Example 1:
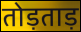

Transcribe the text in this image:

तोड़ताड़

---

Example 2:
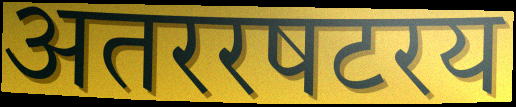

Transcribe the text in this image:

अतररषटरय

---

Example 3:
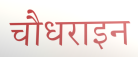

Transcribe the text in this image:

चौधराइन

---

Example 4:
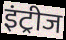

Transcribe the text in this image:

इंट्रीज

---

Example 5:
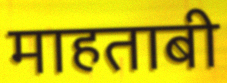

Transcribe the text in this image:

माहताबी